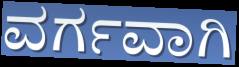
ವರ್ಗವಾಗಿ